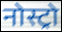
नोस्ट्रो